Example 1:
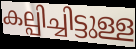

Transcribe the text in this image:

കല്പിച്ചിട്ടുള്ള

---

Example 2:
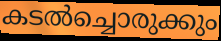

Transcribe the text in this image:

കടൽച്ചൊരുക്കും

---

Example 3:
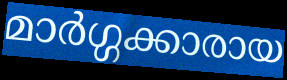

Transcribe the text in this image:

മാർഗ്ഗക്കാരായ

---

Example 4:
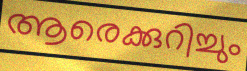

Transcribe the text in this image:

ആരെക്കുറിച്ചും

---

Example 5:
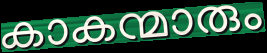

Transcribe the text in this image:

കാകന്മാരും